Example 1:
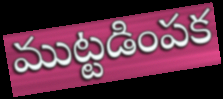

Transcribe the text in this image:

ముట్టడింపక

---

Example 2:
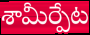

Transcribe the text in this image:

శామీర్పేట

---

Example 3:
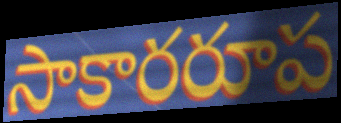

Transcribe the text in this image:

సాకారరూప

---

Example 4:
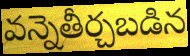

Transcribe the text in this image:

వన్నెతీర్చబడిన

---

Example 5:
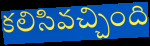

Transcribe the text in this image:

కలిసివచ్చింది